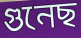
গুনেছ